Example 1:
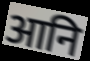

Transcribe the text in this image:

आनि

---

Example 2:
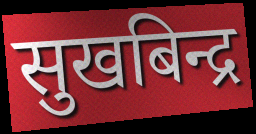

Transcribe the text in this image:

सुखबिन्द्र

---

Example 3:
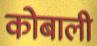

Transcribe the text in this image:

कोबाली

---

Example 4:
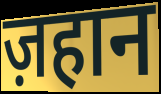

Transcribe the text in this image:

ज़हान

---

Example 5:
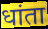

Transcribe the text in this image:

धांता